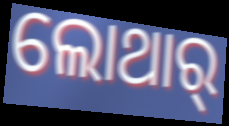
ଲୋଥାର୍